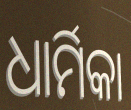
ଧାର୍ମିକା